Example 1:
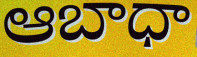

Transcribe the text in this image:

ఆబాధా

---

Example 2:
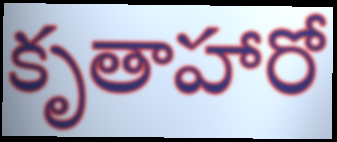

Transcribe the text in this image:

కృతాహారో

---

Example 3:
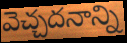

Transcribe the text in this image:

వెచ్చదనాన్ని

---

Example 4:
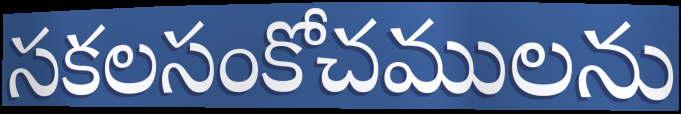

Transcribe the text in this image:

సకలసంకోచములను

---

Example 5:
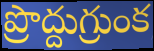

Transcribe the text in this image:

ప్రొద్దుగ్రుంక